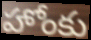
హోంకు